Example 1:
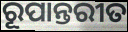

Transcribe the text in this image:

ରୂପାନ୍ତରୀତ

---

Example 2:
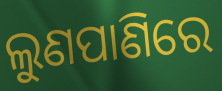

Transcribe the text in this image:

ଲୁଣପାଣିରେ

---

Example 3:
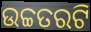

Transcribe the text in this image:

ଉଚ୍ଚତରଟି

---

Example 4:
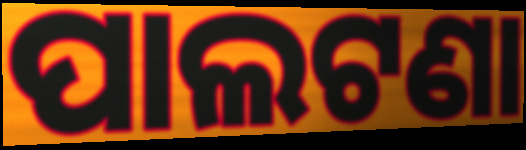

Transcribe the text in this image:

ପାଲଟଣା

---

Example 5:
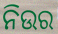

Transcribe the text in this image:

ନିଉର